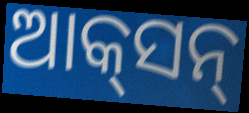
ଆକ୍‍ସନ୍